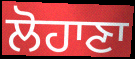
ਲੋਹਾਣਾ